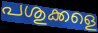
പശുക്കളെ